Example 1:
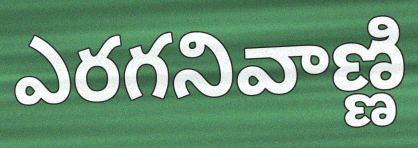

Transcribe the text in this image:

ఎరగనివాణ్ణి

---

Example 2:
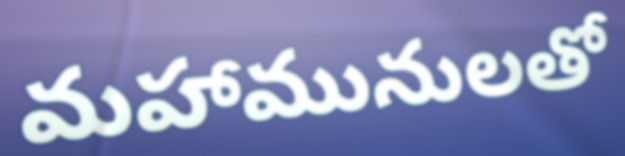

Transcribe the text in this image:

మహామునులతో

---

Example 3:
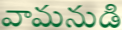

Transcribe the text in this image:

వామనుడి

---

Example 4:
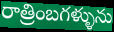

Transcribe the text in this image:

రాత్రింబగళ్ళును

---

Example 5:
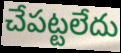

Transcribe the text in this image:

చేపట్టలేదు